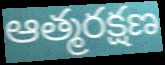
ఆత్మరక్షణ